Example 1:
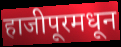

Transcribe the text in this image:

हाजीपूरमधून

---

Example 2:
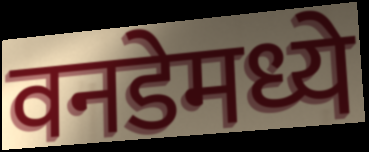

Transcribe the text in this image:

वनडेमध्ये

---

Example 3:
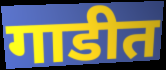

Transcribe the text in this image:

गाडीत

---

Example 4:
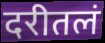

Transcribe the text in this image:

दरीतलं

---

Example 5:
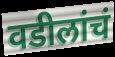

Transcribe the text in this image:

वडीलांचं